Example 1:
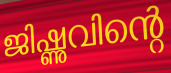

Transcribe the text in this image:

ജിഷ്ണുവിന്റെ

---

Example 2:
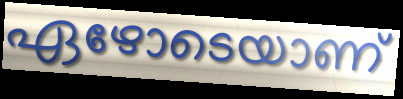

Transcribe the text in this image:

ഏഴോടെയാണ്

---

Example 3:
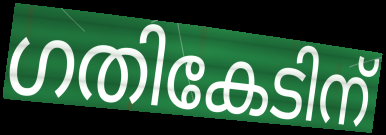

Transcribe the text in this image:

ഗതികേടിന്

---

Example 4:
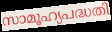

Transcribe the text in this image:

സാമൂഹ്യപദ്ധതി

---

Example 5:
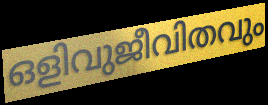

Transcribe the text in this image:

ഒളിവുജീവിതവും